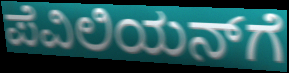
ಪೆವಿಲಿಯನ್‌ಗೆ